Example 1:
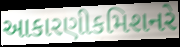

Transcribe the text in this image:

આકારણીકમિશનરે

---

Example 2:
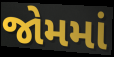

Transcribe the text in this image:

જોમમાં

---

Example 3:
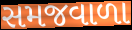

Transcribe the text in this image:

સમજવાળા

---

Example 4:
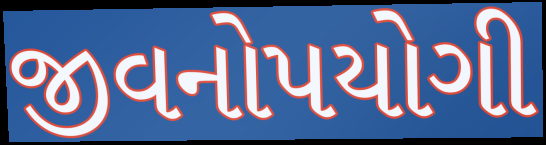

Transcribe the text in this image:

જીવનોપયોગી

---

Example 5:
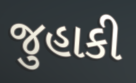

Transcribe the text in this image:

જુહાકી